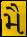
મૈ